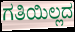
ಗತಿಯಿಲ್ಲದ